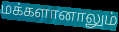
மக்களானாலும்